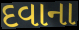
દવાના